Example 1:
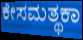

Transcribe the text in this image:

ಕೇಸಮತ್ಥಕಾ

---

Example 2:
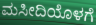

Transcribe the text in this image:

ಮಸೀದಿಯೊಳಗೆ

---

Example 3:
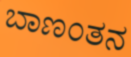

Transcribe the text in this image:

ಬಾಣಂತನ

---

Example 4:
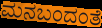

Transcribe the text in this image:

ಮನಬಂದಂತೆ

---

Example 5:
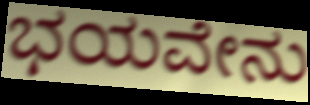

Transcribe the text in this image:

ಭಯವೇನು